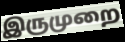
இருமுறை